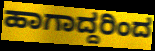
ಹಾಗಾದ್ದರಿಂದ